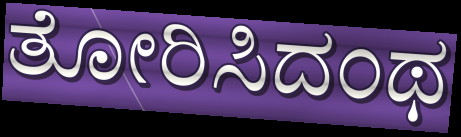
ತೋರಿಸಿದಂಥ